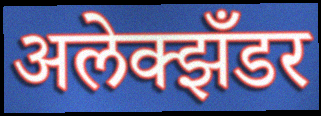
अलेक्झँडर